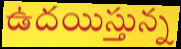
ఉదయిస్తున్న